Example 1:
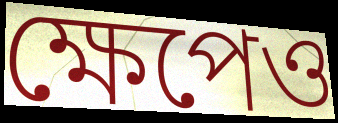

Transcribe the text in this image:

ক্ষেপেও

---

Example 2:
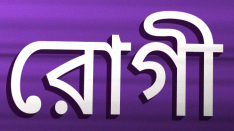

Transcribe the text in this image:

রোগী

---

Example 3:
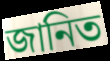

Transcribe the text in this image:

জানিত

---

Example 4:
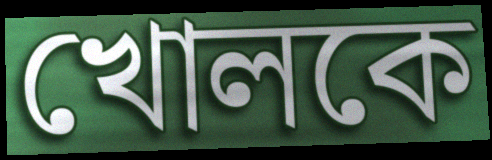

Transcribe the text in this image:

খোলকে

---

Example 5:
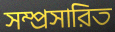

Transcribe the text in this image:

সম্প্রসারিত